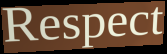
Respect